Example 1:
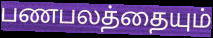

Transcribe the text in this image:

பணபலத்தையும்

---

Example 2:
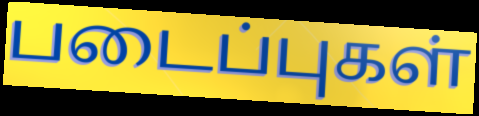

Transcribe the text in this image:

படைப்புகள்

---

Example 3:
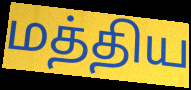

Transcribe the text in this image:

மத்திய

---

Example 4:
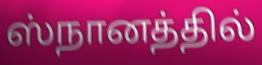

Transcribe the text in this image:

ஸ்நானத்தில்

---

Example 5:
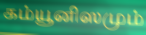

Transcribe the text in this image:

கம்யூனிஸமும்